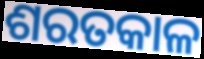
ଶରତକାଳ